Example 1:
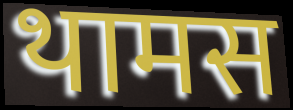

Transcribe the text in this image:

थामस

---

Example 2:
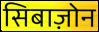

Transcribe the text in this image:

सिबाज़ोन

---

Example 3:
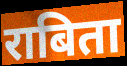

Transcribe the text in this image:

राबिता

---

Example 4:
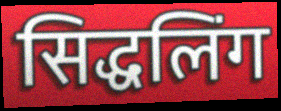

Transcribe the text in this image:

सिद्धलिंग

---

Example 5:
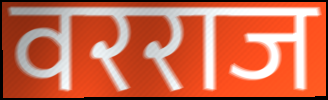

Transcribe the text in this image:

वरराज